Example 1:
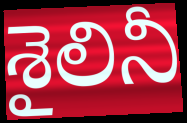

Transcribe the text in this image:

శైలినీ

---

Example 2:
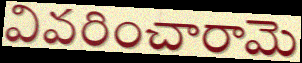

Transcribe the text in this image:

వివరించారామె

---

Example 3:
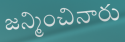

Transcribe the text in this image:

జన్మించినారు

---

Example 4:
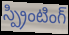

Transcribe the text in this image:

స్ప్రింటింగ్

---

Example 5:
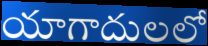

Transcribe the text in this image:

యాగాదులలో